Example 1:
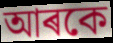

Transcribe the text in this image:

আৰকে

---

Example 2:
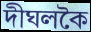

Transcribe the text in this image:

দীঘলকৈ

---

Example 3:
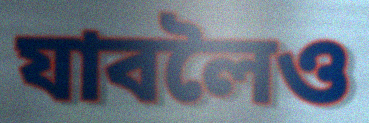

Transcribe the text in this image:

যাবলৈও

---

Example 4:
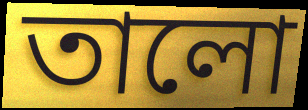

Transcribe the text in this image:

তালো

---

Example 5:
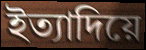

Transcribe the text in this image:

ইত্যাদিয়ে